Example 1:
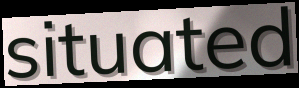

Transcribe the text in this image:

situated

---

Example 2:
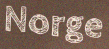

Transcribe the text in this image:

Norge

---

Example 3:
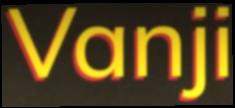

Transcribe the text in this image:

Vanji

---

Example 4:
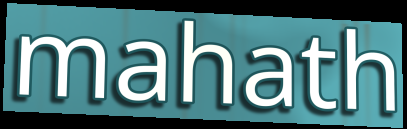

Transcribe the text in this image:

mahath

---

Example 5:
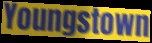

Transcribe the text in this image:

Youngstown